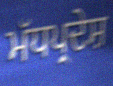
ਮੱਧਪ੍ਰਦੇਸ਼